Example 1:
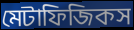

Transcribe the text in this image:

মেটাফিজিকস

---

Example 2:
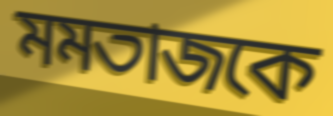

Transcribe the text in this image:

মমতাজকে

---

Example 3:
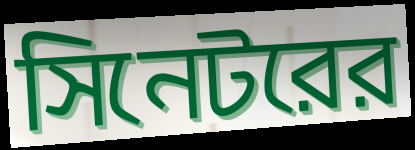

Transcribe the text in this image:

সিনেটরের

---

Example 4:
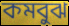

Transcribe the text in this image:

কমবুঝ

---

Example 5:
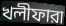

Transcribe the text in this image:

খলীফারা